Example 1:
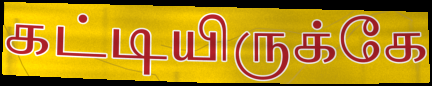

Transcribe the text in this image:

கட்டியிருக்கே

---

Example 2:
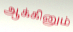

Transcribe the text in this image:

ஆக்கினும்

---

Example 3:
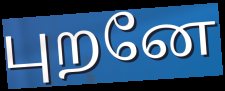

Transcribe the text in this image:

புறனே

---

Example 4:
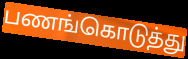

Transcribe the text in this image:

பணங்கொடுத்து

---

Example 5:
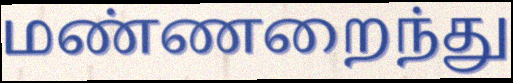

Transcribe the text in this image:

மண்ணறைந்து